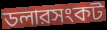
ডলারসংকট